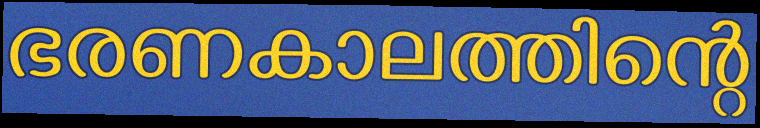
ഭരണകാലത്തിന്റെ